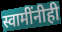
स्वामींनीही